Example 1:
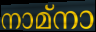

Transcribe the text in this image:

നാമ്നാ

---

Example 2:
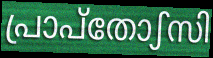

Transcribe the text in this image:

പ്രാപ്തോഽസി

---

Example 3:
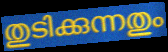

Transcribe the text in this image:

തുടിക്കുന്നതും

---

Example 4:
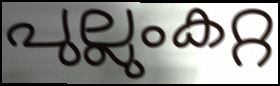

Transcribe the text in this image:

പുല്ലുംകറ്റ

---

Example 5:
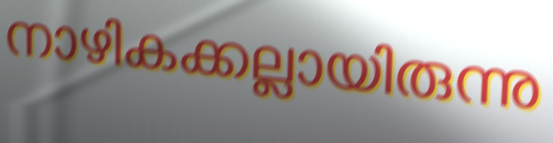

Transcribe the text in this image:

നാഴികക്കല്ലായിരുന്നു